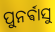
ପୁନର୍ଵାସୁ